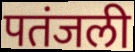
पतंजली